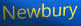
Newbury